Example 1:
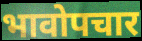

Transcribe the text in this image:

भावोपचार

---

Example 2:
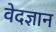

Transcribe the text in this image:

वेदज्ञान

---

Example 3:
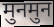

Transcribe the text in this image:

मुनमुन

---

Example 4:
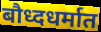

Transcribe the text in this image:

बौध्दधर्मात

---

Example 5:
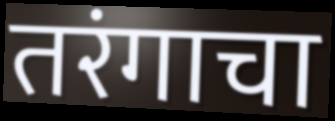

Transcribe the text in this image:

तरंगाचा